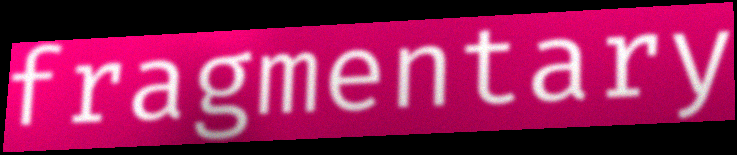
fragmentary